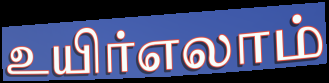
உயிர்எலாம்